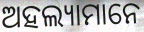
ଅହଲ୍ୟାମାନେ